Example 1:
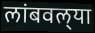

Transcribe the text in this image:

लांबवल्या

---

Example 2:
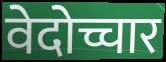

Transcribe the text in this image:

वेदोच्चार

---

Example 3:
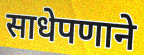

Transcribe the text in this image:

साधेपणाने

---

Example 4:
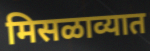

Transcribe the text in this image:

मिसळाव्यात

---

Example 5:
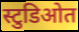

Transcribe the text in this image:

स्टुडिओत